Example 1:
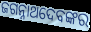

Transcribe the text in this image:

ଜଗନ୍ନାଥଦେବଙ୍କର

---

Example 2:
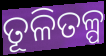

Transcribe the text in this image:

ତୂଳିତଳ୍ପ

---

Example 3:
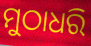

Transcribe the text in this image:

ମୁଠାଧରି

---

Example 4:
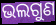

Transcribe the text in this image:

ଭଲଗୁଣ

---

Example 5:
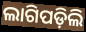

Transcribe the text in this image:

ଲାଗିପଡ଼ିଲି